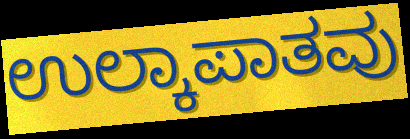
ಉಲ್ಕಾಪಾತವು